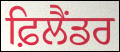
ਫ਼ਿਲੈਂਡਰ